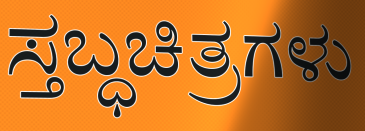
ಸ್ತಬ್ಧಚಿತ್ರಗಳು